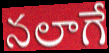
నలాగే